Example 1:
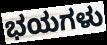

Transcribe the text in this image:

ಭಯಗಳು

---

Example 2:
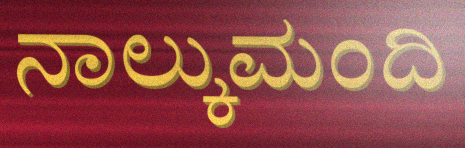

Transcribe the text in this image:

ನಾಲ್ಕುಮಂದಿ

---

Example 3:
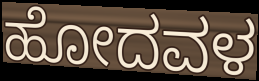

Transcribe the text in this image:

ಹೋದವಳ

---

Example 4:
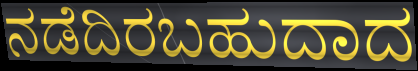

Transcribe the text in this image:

ನಡೆದಿರಬಹುದಾದ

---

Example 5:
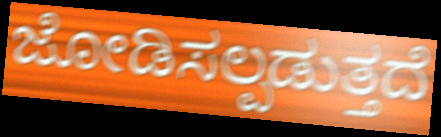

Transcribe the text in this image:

ಜೋಡಿಸಲ್ಪಡುತ್ತದೆ